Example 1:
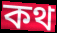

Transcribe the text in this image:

কথ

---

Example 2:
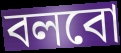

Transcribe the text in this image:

বলবো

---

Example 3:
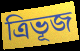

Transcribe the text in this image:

ত্ৰিভূজ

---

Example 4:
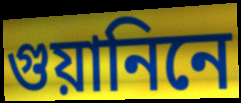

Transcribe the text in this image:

গুয়ানিনে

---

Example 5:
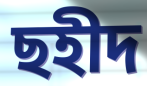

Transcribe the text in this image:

ছহীদ